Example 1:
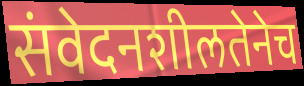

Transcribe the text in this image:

संवेदनशीलतेनेच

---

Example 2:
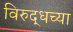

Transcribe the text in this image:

विरुद्धच्या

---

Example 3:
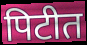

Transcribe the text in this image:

पिटीत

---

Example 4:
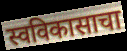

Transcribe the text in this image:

स्वविकासाचा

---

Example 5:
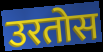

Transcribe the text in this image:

उरतोस